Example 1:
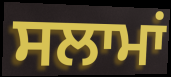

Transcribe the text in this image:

ਸਲਾਮਾਂ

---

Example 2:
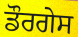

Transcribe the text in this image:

ਡੌਰਗੇਸ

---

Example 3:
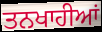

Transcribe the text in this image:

ਤਨਖਾਹੀਆਂ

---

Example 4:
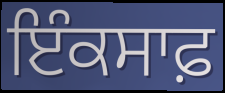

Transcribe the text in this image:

ਇੰਕਸਾਫ਼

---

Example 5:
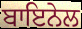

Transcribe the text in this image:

ਬਾਇਨੇਲ